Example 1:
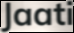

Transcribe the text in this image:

Jaati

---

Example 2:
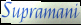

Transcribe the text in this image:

Supramani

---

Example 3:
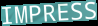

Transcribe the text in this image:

IMPRESS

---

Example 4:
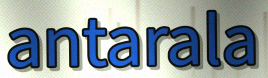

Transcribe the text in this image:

antarala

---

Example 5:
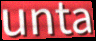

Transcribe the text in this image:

unta